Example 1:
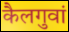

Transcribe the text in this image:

कैलगुवां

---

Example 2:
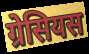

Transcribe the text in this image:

ग्रेसियस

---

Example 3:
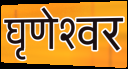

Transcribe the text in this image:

घृणेश्वर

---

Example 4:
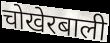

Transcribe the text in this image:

चोखेरबाली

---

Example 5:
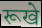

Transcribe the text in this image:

रूखे